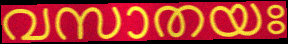
വസാതയഃ